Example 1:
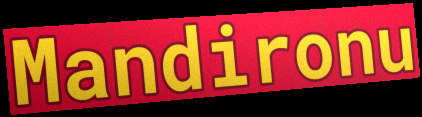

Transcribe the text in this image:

Mandironu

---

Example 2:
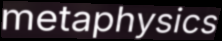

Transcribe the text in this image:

metaphysics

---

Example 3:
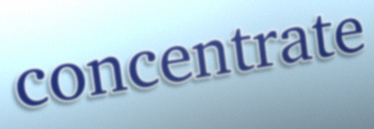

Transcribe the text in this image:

concentrate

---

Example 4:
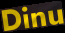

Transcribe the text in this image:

Dinu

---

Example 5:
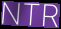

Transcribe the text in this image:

NTR